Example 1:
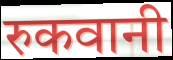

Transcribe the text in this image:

रुकवानी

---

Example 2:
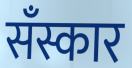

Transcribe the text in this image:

सँस्कार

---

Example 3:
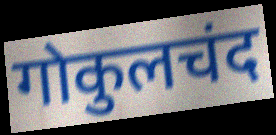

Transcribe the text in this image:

गोकुलचंद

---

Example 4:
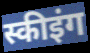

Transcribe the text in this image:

स्कीइंग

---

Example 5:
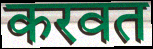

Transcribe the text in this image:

करवत